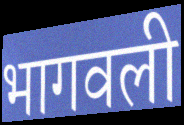
भागवली